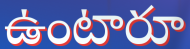
ఉంటారూ